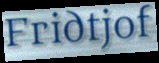
Fridtjof